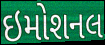
ઇમોશનલ